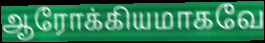
ஆரோக்கியமாகவே